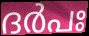
ദർപഃ